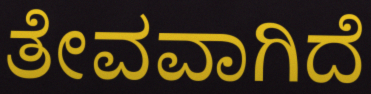
ತೇವವಾಗಿದೆ